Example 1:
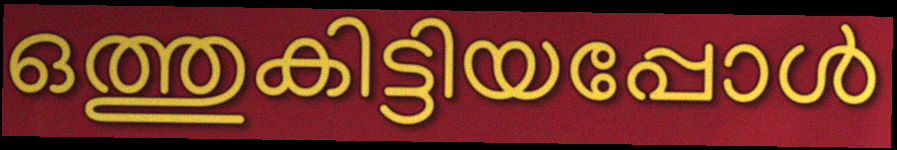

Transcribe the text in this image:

ഒത്തുകിട്ടിയപ്പോൾ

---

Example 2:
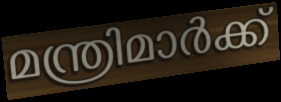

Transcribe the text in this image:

മന്ത്രിമാർക്ക്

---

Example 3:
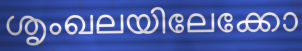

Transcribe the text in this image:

ശൃംഖലയിലേക്കോ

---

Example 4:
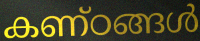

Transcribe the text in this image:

കണ്ഠങ്ങൾ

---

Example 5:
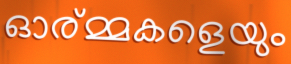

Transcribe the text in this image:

ഓര്മ്മകളെയും